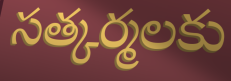
సత్కర్మలకు